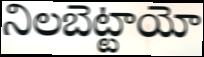
నిలబెట్టాయో